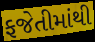
ફજેતીમાંથી